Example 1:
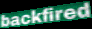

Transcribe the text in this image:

backfired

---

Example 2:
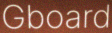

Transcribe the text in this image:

Gboard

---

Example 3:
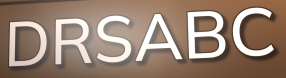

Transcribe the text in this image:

DRSABC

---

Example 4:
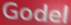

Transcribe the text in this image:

Godel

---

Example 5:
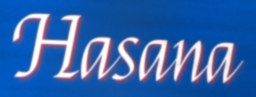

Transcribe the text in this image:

Hasana